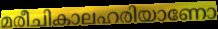
മരീചികാലഹരിയാണോ